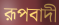
রূপবাদী